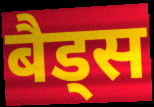
बैड्स